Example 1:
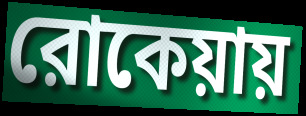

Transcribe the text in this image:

রোকেয়ায়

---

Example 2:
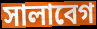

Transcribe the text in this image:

সালাবেগ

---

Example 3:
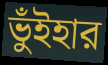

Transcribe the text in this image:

ভুঁইহার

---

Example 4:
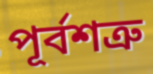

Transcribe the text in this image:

পূর্বশত্রু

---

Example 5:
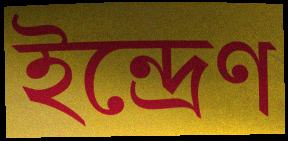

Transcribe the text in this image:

ইন্দ্রেণ